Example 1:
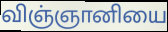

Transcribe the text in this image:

விஞ்ஞானியை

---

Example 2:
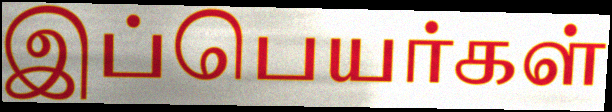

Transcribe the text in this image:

இப்பெயர்கள்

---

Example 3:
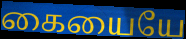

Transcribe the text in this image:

கையையே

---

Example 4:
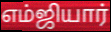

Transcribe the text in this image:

எம்ஜியார்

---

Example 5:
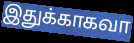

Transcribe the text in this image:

இதுக்காகவா